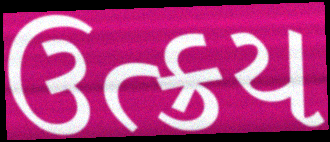
ઉત્ક્રય